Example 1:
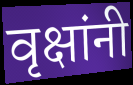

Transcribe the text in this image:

वृक्षांनी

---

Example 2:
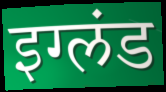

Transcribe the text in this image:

इग्लंड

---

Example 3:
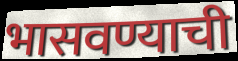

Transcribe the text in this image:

भासवण्याची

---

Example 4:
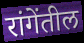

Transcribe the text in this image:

रांगेंतील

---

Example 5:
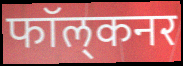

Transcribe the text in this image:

फॉल्कनर